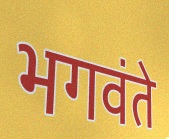
भगवंते